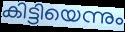
കിട്ടിയെന്നും